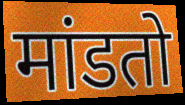
मांडतो